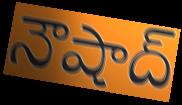
నౌషాద్